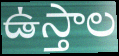
ఉస్తాల